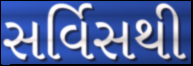
સર્વિસથી